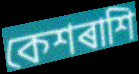
কেশৰাশি